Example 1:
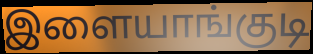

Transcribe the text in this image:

இளையாங்குடி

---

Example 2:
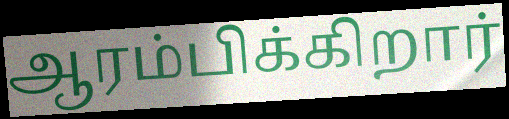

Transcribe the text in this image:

ஆரம்பிக்கிறார்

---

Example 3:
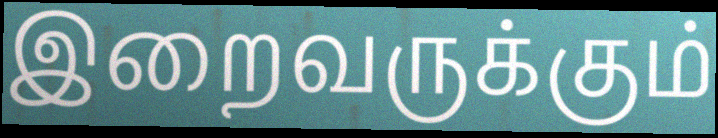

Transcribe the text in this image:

இறைவருக்கும்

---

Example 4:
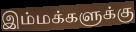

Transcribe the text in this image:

இம்மக்களுக்கு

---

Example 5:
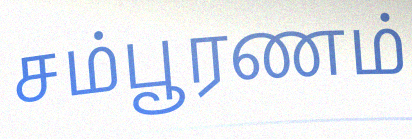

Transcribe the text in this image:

சம்பூரணம்